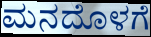
ಮನದೊಳಗೆ